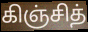
கிஞ்சித்